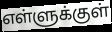
எள்ளுக்குள்